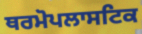
ਥਰਮੋਪਲਾਸਟਿਕ